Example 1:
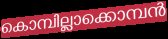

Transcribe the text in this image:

കൊമ്പില്ലാക്കൊമ്പൻ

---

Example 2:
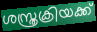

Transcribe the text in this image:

ശസ്ത്രക്രിയക്ക്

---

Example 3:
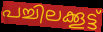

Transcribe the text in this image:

പച്ചിലക്കൂട്ട്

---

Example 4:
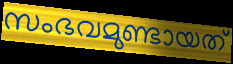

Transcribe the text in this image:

സംഭവമുണ്ടായത്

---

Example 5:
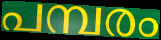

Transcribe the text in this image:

പമ്പരം